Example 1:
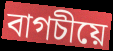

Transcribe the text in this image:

বাগচীয়ে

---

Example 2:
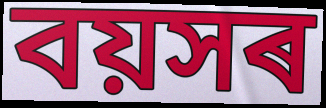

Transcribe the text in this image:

বয়সৰ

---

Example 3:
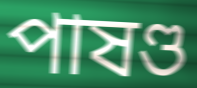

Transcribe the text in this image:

পাষণ্ড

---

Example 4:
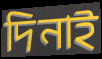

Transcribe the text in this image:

দিনাই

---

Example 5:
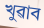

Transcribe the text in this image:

খুৱাব